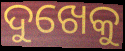
ଦୁଖେକୁ